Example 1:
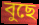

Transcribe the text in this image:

বুছে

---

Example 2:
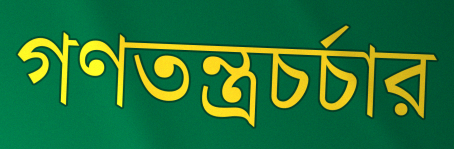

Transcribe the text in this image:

গণতন্ত্রচর্চার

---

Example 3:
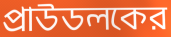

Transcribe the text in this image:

প্রাউডলকের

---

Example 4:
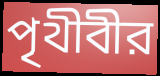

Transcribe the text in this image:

পৃথীবীর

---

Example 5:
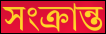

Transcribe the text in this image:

সংক্রান্ত